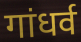
गांधर्व